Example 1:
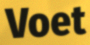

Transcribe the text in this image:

Voet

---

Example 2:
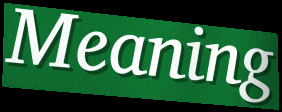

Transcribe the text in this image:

Meaning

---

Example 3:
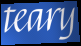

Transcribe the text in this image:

teary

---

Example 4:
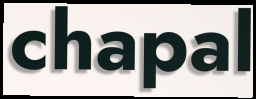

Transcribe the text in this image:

chapal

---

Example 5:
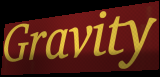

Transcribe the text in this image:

Gravity